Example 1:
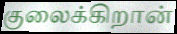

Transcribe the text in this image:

குலைக்கிறான்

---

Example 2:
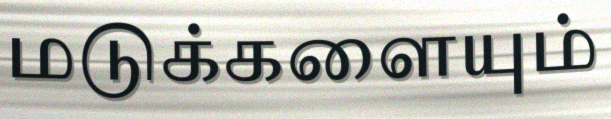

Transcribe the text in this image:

மடுக்களையும்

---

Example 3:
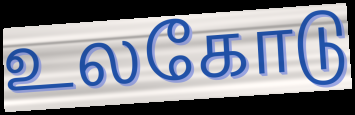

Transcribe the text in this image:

உலகோடு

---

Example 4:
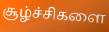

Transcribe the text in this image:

சூழ்ச்சிகளை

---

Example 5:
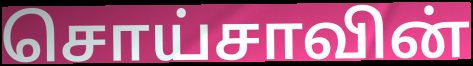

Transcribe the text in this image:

சொய்சாவின்